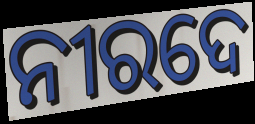
ନୀରଦେ